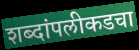
शब्दांपलीकडचा